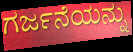
ಗರ್ಜನೆಯನ್ನು